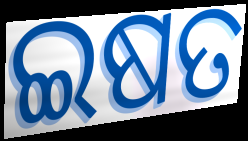
ଇଷତ